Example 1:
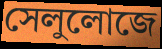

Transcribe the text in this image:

সেলুলোজে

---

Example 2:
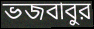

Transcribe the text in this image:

ভজবাবুর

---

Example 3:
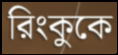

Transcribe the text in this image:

রিংকুকে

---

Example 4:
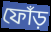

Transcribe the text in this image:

ফোঁড়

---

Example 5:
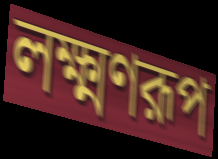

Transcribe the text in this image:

লক্ষ্মণরূপ